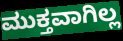
ಮುಕ್ತವಾಗಿಲ್ಲ